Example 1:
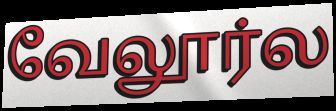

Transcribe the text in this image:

வேலூர்ல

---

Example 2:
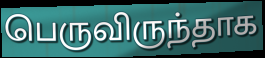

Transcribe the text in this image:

பெருவிருந்தாக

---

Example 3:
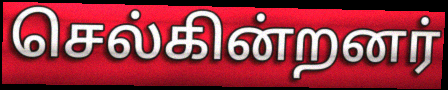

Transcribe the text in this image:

செல்கின்றனர்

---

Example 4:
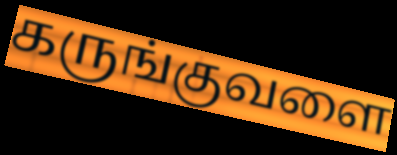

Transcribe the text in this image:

கருங்குவளை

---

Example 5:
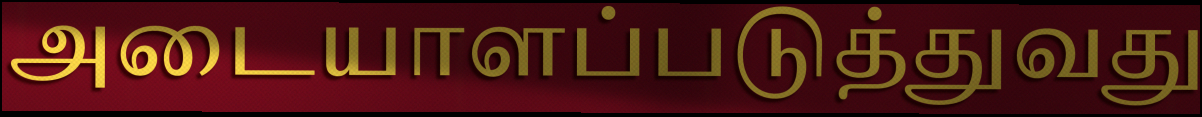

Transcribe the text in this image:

அடையாளப்படுத்துவது